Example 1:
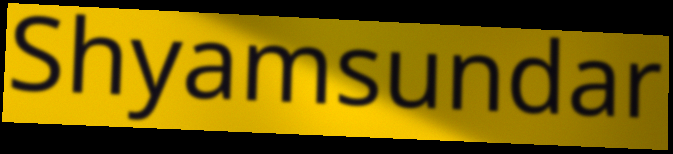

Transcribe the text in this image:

Shyamsundar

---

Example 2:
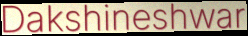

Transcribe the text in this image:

Dakshineshwar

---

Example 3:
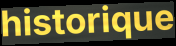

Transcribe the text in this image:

historique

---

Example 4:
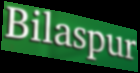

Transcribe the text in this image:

Bilaspur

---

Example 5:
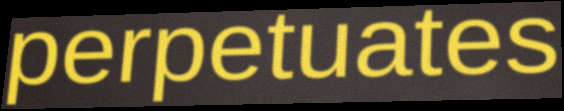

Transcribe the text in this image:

perpetuates